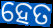
ହେତ